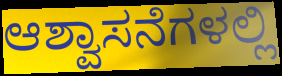
ಆಶ್ವಾಸನೆಗಳಲ್ಲಿ